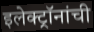
इलेक्ट्रॉनांची